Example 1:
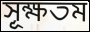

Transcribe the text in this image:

সূক্ষতম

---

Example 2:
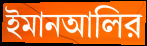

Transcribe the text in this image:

ইমানআলির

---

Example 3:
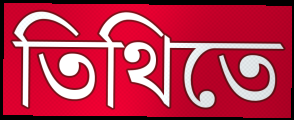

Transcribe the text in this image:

তিথিতে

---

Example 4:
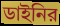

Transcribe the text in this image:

ডাইনির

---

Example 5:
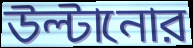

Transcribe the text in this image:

উল্টানোর